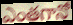
ఎంతగానో